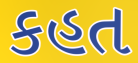
કહત